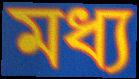
মধ্য